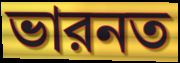
ভারনত